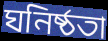
ঘনিষ্ঠতা